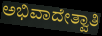
ಅಭಿವಾದೇತ್ವಾತಿ